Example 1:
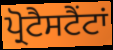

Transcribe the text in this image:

ਪ੍ਰੋਟੈਸਟੈਂਟਾਂ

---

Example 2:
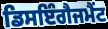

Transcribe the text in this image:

ਡਿਸਇੰਗੈਜਮੈਂਟ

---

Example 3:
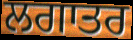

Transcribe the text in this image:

ਲਗਾਤਰ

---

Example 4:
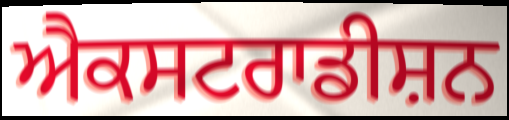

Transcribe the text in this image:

ਐਕਸਟਰਾਡੀਸ਼ਨ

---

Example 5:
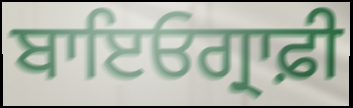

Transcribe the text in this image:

ਬਾਇਓਗ੍ਰਾਫ਼ੀ